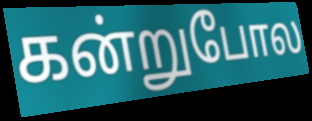
கன்றுபோல